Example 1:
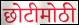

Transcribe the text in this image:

छोटीमोठी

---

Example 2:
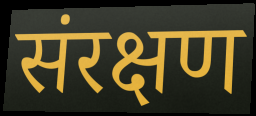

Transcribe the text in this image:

संरक्षण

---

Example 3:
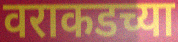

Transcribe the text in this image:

वराकडच्या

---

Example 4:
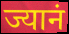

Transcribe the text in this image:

ज्यानं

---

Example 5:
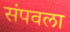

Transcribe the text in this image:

संपवला